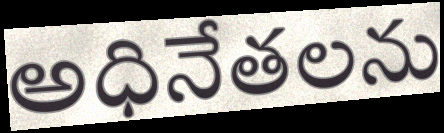
అధినేతలను